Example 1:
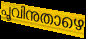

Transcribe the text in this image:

പൂവിനുതാഴെ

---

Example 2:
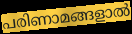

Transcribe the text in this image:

പരിണാമങ്ങളാൽ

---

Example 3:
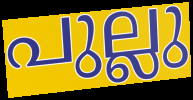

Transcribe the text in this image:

പുല്ലു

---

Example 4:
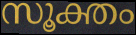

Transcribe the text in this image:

സൂക്തം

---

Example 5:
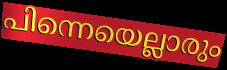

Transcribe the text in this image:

പിന്നെയെല്ലാരും